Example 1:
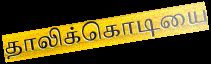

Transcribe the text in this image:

தாலிக்கொடியை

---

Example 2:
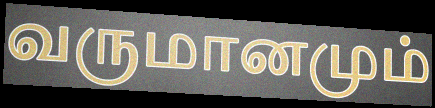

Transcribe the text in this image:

வருமானமும்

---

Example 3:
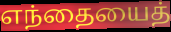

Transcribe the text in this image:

எந்தையைத்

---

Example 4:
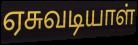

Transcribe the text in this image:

ஏசுவடியாள்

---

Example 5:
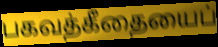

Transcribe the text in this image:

பகவத்கீதையைப்